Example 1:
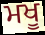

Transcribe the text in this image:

ਮਖੂ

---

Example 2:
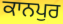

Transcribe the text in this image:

ਕਾਨਪੁਰ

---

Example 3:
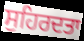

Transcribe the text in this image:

ਸੁਹਿਰਦਤਾ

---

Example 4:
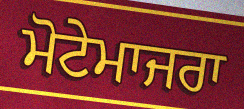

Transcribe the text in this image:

ਮੋਟੇਮਾਜਰਾ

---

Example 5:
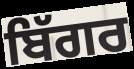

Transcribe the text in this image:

ਬਿੱਗਰ